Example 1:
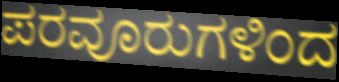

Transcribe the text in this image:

ಪರವೂರುಗಳಿಂದ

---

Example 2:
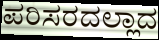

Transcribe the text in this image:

ಪರಿಸರದಲ್ಲಾದ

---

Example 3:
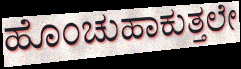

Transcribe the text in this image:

ಹೊಂಚುಹಾಕುತ್ತಲೇ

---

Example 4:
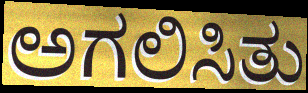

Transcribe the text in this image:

ಅಗಲಿಸಿತು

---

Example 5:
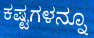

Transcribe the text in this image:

ಕಷ್ಟಗಳನ್ನೂ